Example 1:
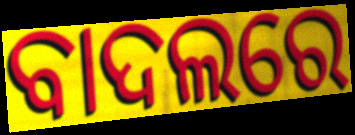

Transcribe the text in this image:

ବାଦଲରେ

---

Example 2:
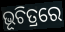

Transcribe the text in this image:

ଭୂଚିତ୍ରରେ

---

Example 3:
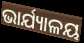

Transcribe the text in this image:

ଭାର୍ଯ୍ୟାଳୟ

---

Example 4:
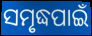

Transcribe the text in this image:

ସମୃଦ୍ଧପାଇଁ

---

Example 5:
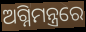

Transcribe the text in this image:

ଅଗ୍ନିମନ୍ତ୍ରରେ